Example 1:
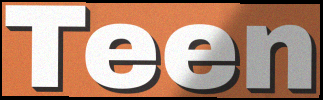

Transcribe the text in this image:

Teen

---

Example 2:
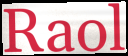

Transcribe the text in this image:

Raol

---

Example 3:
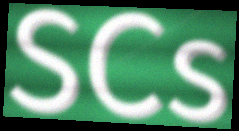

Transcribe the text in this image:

SCs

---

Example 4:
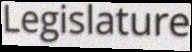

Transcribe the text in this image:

Legislature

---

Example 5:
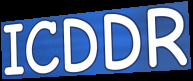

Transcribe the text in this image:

ICDDR